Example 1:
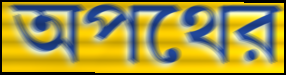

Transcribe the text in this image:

অপথের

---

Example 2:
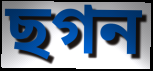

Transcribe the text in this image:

ছগন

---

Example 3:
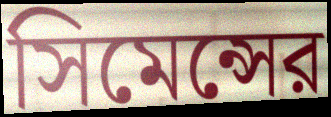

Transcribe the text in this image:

সিমেন্সের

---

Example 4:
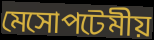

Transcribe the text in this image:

মেসোপটেমীয়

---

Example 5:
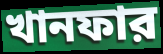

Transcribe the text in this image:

খানফার